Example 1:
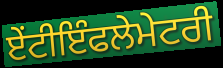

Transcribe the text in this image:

ਏੰਟੀਇੰਫਲੇਮੇਟਰੀ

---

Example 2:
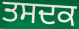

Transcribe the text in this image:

ਤਸਦਕ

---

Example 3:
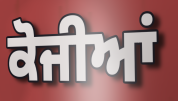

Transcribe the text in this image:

ਕੋਜੀਆਂ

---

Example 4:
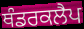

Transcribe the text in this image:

ਥੰਡਰਕਲੈਪ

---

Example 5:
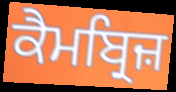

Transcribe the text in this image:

ਕੈਮਬ੍ਰਿਜ਼